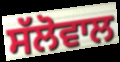
ਸੱਲੋਵਾਲ